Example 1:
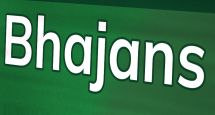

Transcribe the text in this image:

Bhajans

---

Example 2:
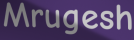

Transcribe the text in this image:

Mrugesh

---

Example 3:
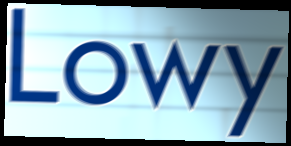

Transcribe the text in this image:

Lowy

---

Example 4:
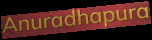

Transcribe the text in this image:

Anuradhapura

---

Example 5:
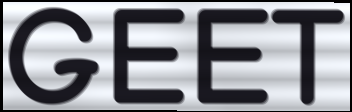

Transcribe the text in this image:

GEET